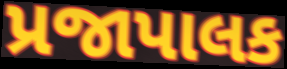
પ્રજાપાલક